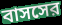
বাসসের